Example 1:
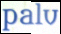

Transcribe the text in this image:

palu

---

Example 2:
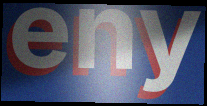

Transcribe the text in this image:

eny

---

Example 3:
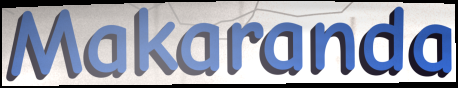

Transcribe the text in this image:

Makaranda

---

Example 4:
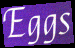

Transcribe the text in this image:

Eggs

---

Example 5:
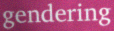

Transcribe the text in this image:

gendering